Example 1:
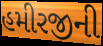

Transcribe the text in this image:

હમીરજીની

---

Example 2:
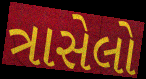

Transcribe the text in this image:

ત્રાસેલો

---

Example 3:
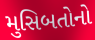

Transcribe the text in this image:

મુસિબતોનો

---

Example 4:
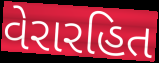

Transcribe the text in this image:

વેરારહિત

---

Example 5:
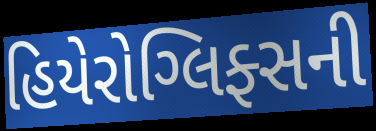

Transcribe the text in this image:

હિયેરોગ્લિફ્સની